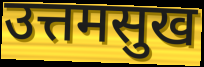
उत्तमसुख